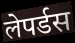
लेपर्डस